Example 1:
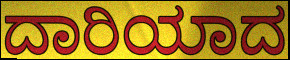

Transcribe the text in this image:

ದಾರಿಯಾದ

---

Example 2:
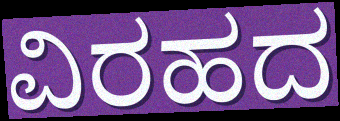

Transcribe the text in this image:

ವಿರಹದ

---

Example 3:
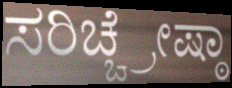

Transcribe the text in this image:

ಸರಿಚ್ಚ್ರೇಷ್ಠಾ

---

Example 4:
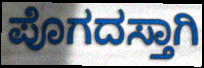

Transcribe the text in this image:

ಪೊಗದಸ್ತಾಗಿ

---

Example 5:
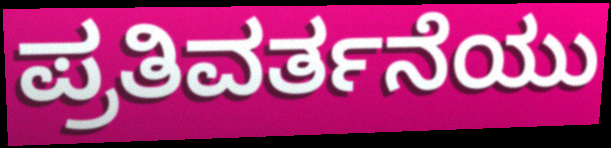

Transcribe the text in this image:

ಪ್ರತಿವರ್ತನೆಯು